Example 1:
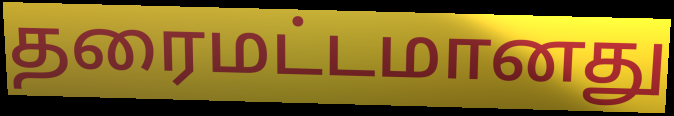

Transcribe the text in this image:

தரைமட்டமானது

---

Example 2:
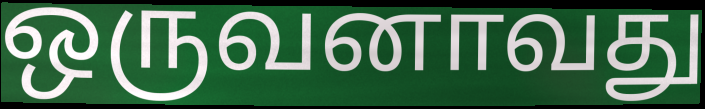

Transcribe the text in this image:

ஒருவனாவது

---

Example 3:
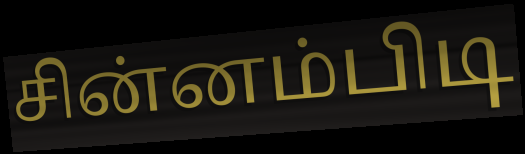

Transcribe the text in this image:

சின்னம்பிடி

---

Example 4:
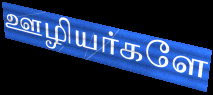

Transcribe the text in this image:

ஊழியர்களே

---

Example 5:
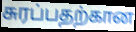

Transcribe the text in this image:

சுரப்பதற்கான